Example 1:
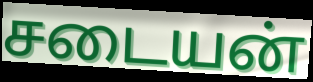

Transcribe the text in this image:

சடையன்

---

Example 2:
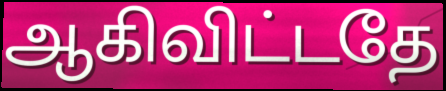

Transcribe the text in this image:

ஆகிவிட்டதே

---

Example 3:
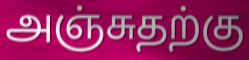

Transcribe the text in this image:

அஞ்சுதற்கு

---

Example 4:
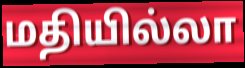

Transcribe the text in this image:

மதியில்லா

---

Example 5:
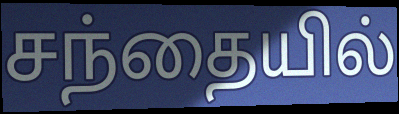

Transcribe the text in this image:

சந்தையில்